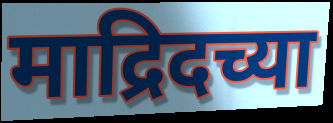
माद्रिदच्या